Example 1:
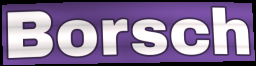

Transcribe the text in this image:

Borsch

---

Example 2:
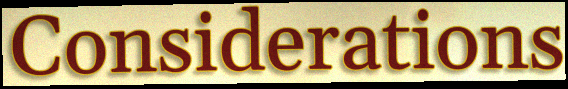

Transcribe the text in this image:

Considerations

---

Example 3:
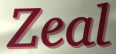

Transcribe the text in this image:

Zeal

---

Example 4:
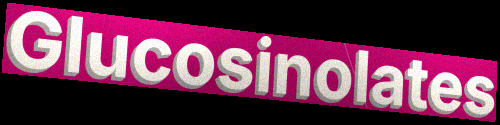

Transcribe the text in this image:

Glucosinolates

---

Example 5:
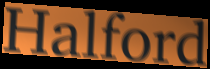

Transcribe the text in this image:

Halford